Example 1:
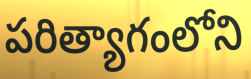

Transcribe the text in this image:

పరిత్యాగంలోని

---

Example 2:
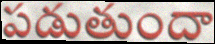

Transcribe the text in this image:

పడుతుందా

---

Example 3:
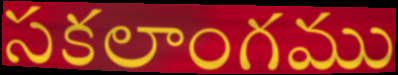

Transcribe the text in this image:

సకలాంగము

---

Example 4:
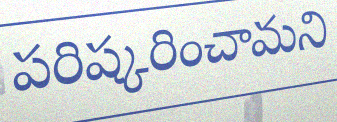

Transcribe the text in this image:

పరిష్కరించామని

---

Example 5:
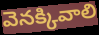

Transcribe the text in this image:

వెనక్కివాలి